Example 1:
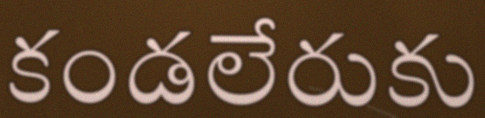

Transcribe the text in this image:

కండలేరుకు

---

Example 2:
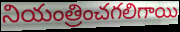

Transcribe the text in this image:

నియంత్రించగలిగాయి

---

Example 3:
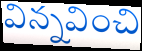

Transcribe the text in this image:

విన్నవించి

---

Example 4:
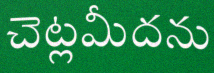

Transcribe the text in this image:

చెట్లమీదను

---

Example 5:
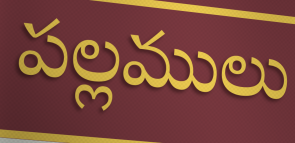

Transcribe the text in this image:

పల్లములు